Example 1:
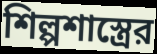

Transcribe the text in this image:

শিল্পশাস্ত্রের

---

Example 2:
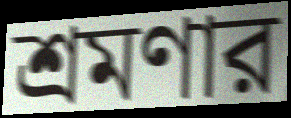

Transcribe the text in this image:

শ্রমণার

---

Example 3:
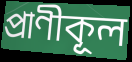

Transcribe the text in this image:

প্রাণীকূল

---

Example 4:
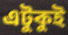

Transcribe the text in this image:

এটুকুই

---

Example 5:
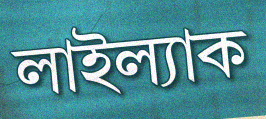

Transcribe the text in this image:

লাইল্যাক